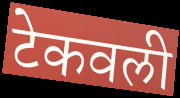
टेकवली